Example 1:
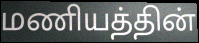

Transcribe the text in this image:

மணியத்தின்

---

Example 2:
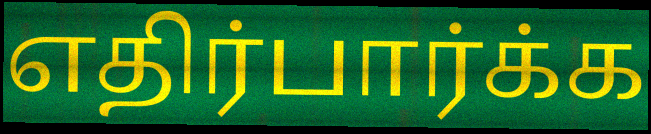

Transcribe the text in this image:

எதிர்பார்க்க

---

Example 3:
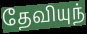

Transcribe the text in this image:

தேவியுந்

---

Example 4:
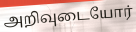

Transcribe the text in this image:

அறிவுடையோர்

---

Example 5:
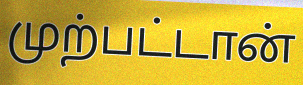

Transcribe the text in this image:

முற்பட்டான்